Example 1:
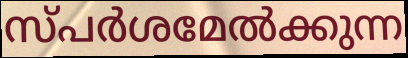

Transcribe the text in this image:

സ്പർശമേൽക്കുന്ന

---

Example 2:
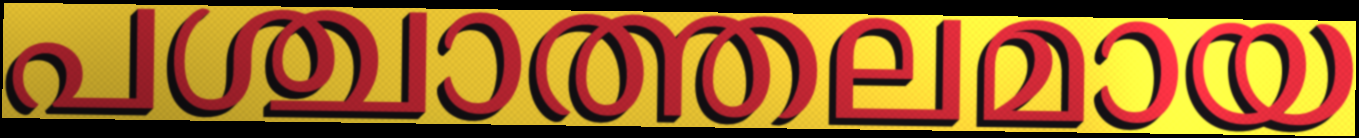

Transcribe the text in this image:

പശ്ചാത്തലമായ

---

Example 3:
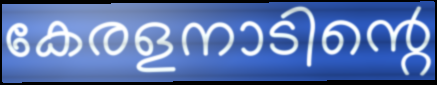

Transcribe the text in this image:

കേരളനാടിന്റെ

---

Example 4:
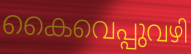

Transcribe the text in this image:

കൈവെപ്പുവഴി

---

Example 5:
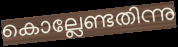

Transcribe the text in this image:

കൊല്ലേണ്ടതിന്നു